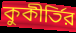
কুকীর্তির